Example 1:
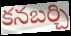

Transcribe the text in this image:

కనబర్చి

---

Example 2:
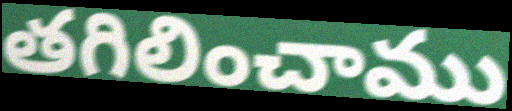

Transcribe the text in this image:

తగిలించాము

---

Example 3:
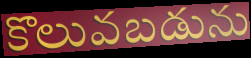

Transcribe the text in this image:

కొలువబడును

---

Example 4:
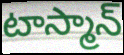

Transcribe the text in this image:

టాస్మాన్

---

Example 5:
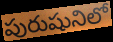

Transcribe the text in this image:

పురుషునిలో